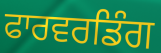
ਫਾਰਵਰਡਿੰਗ